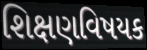
શિક્ષણવિષયક